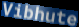
Vibhute